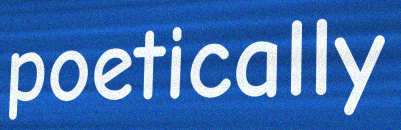
poetically